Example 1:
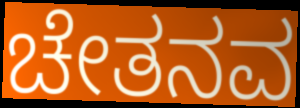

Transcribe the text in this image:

ಚೇತನವ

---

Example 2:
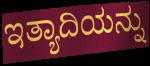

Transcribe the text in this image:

ಇತ್ಯಾದಿಯನ್ನು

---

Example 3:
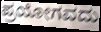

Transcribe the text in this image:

ಪ್ರಯೋಗವದು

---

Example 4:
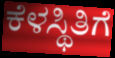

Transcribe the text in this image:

ಕೆಳಸ್ಥಿತಿಗೆ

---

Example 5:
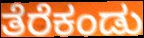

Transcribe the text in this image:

ತೆರೆಕಂಡು